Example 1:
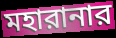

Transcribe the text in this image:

মহারানার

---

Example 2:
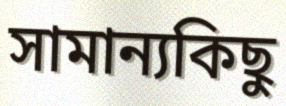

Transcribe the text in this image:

সামান্যকিছু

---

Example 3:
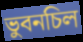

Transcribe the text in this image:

ভুবনচিল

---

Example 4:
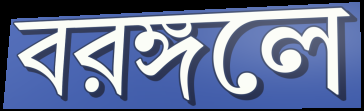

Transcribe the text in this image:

বরঙ্গলে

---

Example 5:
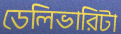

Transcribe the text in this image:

ডেলিভারিটা